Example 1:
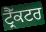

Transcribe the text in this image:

ਟ੍ਰੈੱਕਟਰ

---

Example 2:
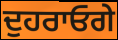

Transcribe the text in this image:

ਦੁਹਰਾਓਗੇ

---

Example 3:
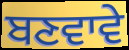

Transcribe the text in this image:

ਬਣਵਾਵੇ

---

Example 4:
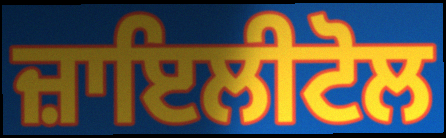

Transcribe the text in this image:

ਜ਼ਾਇਲੀਟੋਲ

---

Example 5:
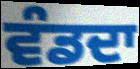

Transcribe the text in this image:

ਵੰਡਦਾ